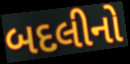
બદલીનો